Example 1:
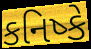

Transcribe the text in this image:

કનિષ્કે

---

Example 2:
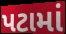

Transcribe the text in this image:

પટામાં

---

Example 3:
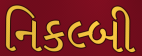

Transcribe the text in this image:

નિકલ્બી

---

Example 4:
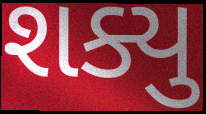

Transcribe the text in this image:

શક્યુ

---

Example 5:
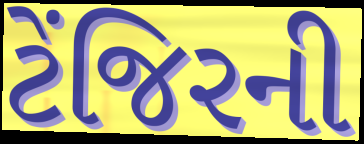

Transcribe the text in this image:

ટેંજિરની